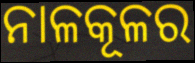
ନାଳକୂଳର